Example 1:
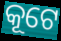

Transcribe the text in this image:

କୂଟେ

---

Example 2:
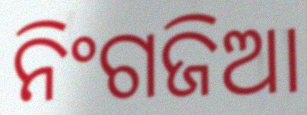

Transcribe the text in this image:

ନିଂଗଜିଆ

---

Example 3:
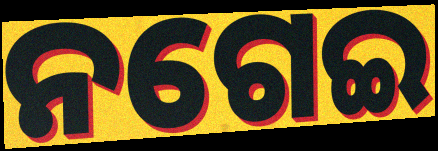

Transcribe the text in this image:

ନଗେଇ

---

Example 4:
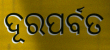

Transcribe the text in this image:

ଦୂରପର୍ବତ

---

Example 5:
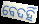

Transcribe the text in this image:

ବେଦହିଁ